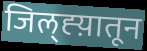
जिल्ह्य़ातून